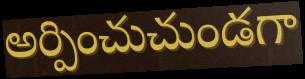
అర్పించుచుండగా